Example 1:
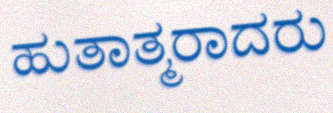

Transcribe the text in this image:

ಹುತಾತ್ಮರಾದರು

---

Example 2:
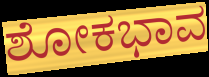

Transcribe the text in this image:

ಶೋಕಭಾವ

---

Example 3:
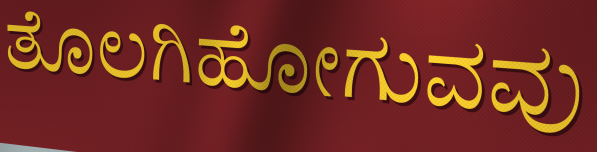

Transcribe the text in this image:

ತೊಲಗಿಹೋಗುವವು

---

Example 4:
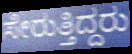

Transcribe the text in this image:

ಸೇರುತ್ತಿದ್ದರು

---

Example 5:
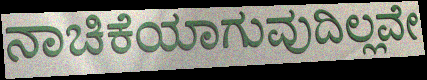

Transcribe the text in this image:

ನಾಚಿಕೆಯಾಗುವುದಿಲ್ಲವೇ